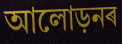
আলোড়নৰ